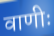
वाणीः